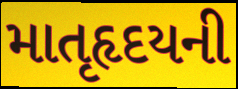
માતૃહૃદયની